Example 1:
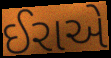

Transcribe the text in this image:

ઈરાએ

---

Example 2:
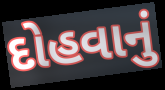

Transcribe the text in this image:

દોહવાનું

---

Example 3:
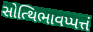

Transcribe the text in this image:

સોત્થિભાવપ્પત્તં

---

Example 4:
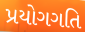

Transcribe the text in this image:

પ્રયોગગતિ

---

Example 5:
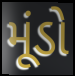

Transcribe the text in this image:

મૂંડો